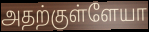
அதற்குள்ளேயா